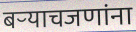
बऱ्याचजणांना